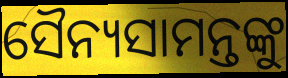
ସୈନ୍ୟସାମନ୍ତଙ୍କୁ